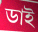
ডাই